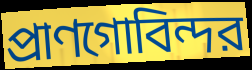
প্রাণগোবিন্দর